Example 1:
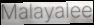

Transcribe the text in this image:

Malayalee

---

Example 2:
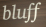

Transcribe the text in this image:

bluff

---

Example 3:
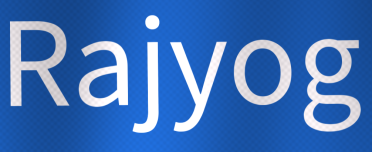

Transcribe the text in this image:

Rajyog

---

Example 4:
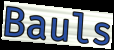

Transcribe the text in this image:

Bauls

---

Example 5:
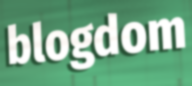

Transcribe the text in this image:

blogdom